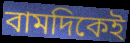
বামদিকেই